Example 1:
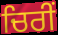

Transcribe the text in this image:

ਚਿਰੀਂ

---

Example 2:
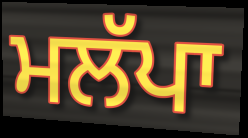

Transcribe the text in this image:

ਮਲੱਪਾ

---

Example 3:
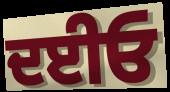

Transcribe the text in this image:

ਦਈਓ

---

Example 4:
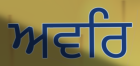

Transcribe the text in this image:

ਅਵਰਿ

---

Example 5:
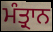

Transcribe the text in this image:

ਮੰਤ੍ਰਾਨ